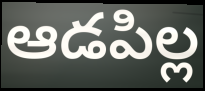
ఆడపిల్ల